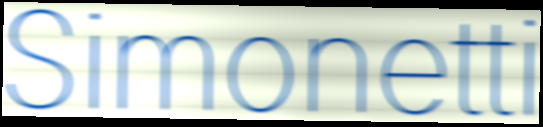
Simonetti